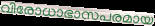
വിരോധാഭാസപരമായ